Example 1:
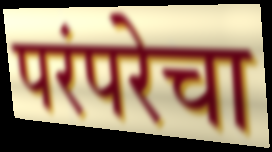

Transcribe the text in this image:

परंपरेचा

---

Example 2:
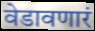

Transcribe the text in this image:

वेडावणारं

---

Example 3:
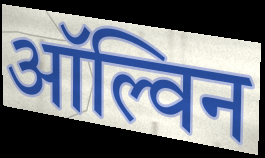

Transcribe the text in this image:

ऑल्विन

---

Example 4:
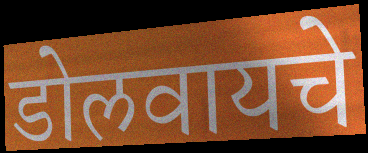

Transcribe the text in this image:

डोलवायचे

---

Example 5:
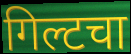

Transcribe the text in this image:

गिल्टचा